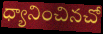
ధ్యానించినచో